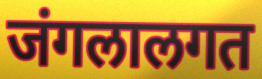
जंगलालगत